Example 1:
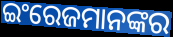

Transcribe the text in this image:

ଇଂରେଜମାନଙ୍କର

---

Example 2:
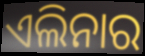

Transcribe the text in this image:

ଏଲିନାର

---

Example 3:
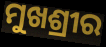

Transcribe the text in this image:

ମୁଖଶ୍ରୀର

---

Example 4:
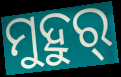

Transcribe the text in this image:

ମୁହୁର୍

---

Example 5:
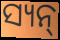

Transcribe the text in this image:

ସ୍ୟନ୍